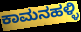
ಕಾಮನಹಳ್ಳಿ